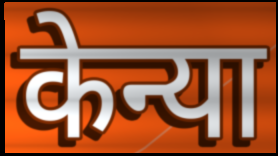
केन्या